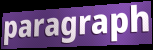
paragraph